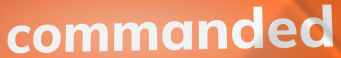
commanded